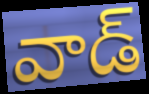
వాడ్